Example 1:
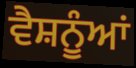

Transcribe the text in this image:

ਵੈਸ਼ਨੂੰਆਂ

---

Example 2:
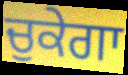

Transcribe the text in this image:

ਚੁਕੇਗਾ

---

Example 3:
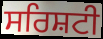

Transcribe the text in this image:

ਸਰਿਸ਼ਟੀ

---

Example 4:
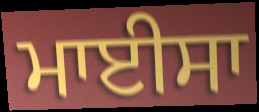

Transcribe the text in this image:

ਮਾਈਸਾ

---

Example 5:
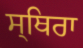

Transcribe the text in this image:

ਸ੍ਥਿਰਾ